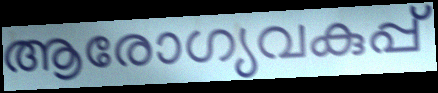
ആരോഗ്യവകുപ്പ്